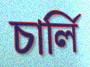
চাৰ্লি